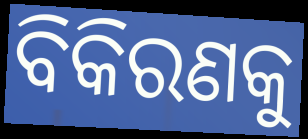
ବିକିରଣକୁ